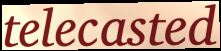
telecasted